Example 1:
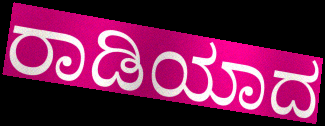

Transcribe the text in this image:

ರಾಡಿಯಾದ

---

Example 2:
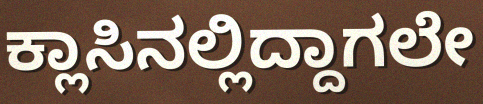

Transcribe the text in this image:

ಕ್ಲಾಸಿನಲ್ಲಿದ್ದಾಗಲೇ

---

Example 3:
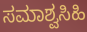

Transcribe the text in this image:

ಸಮಾಶ್ವಸಿಹಿ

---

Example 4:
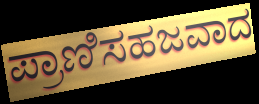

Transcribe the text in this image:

ಪ್ರಾಣಿಸಹಜವಾದ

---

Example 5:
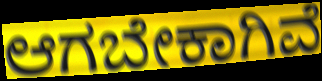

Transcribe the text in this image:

ಆಗಬೇಕಾಗಿವೆ